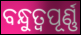
ବନ୍ଧୁତ୍ଵପୂର୍ଣ୍ଣ